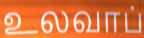
உலவாப்